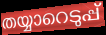
തയ്യാറെടുപ്പ്